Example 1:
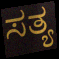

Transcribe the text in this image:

ಸತ್ಯ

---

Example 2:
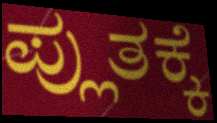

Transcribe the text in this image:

ಪ್ಲುತಕ್ಕೆ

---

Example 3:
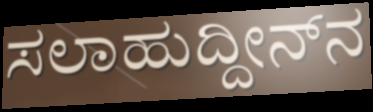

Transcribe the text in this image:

ಸಲಾಹುದ್ದೀನ್‍ನ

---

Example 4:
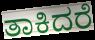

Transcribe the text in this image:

ತಾಕಿದರೆ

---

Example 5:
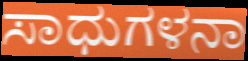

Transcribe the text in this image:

ಸಾಧುಗಳನಾ